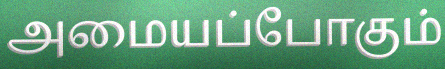
அமையப்போகும்